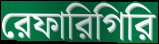
রেফারিগিরি